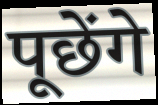
पूछेंगे